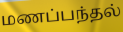
மணப்பந்தல்